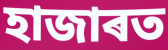
হাজাৰত